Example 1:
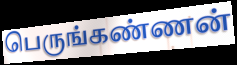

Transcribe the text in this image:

பெருங்கண்ணன்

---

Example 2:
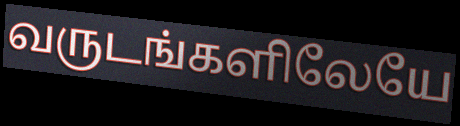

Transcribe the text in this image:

வருடங்களிலேயே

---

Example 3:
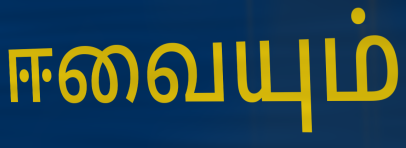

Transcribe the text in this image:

ஈவையும்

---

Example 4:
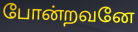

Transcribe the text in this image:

போன்றவனே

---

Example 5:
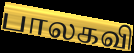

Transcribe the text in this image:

பாலகவி